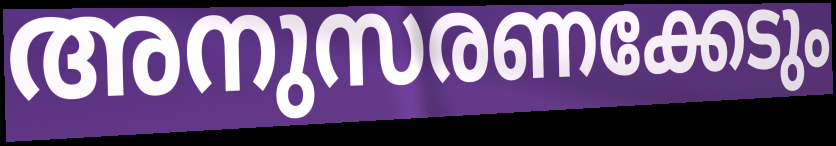
അനുസരണക്കേടും